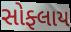
સોફ્લાય